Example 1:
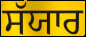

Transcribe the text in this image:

ਸੱਯਾਰ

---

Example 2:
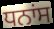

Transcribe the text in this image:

ਧਨਾਂਸ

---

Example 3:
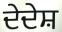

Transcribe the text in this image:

ਦੇਦੇਸ਼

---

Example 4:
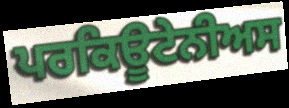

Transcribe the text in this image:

ਪਰਕਿਊਟੇਨੀਅਸ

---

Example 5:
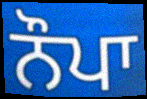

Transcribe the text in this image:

ਨੌਪਾ